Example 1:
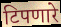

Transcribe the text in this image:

टिपणारे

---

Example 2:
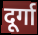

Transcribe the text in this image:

दूर्गा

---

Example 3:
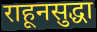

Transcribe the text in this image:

राहूनसुद्धा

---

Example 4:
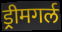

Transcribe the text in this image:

ड्रीमगर्ल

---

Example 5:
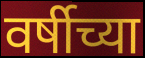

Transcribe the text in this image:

वर्षीच्या